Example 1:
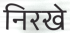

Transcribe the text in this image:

निरखे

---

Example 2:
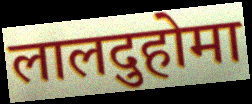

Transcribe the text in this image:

लालदुहोमा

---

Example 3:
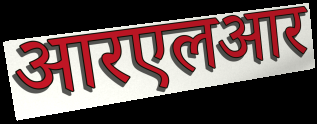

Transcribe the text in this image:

आरएलआर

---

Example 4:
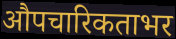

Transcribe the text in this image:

औपचारिकताभर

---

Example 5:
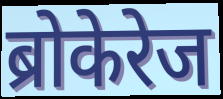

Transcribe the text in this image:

ब्रोकेरेज